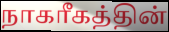
நாகரீகத்தின்